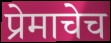
प्रेमाचेच